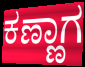
ಕಣ್ಣಾಗ